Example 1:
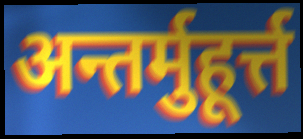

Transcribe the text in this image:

अन्तर्मुहूर्त्त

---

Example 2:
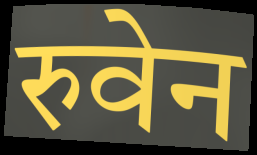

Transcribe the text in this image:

रुवेन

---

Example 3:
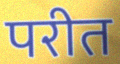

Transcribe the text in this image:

परीत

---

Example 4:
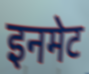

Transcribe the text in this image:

इनमेट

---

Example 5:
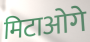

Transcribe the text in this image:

मिटाओगे